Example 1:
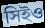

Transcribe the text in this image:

সিইও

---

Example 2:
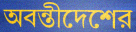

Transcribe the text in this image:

অবন্তীদেশের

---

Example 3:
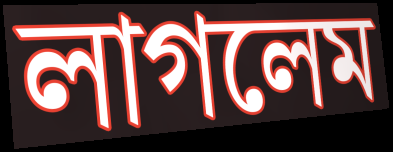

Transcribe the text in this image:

লাগলেম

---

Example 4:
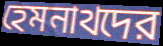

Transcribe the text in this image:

হেমনাথদের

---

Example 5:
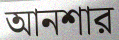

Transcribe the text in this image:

আনশার